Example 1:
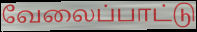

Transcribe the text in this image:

வேலைப்பாட்டு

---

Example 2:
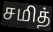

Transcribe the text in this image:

சமித்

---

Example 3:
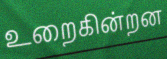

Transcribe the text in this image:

உறைகின்றன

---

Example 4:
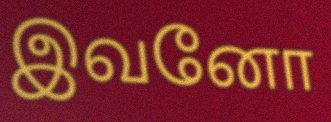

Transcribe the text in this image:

இவனோ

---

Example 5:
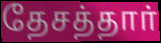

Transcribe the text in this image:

தேசத்தார்